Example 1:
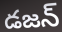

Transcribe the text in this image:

డజన్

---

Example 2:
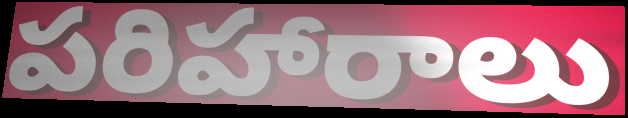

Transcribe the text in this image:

పరిహారాలు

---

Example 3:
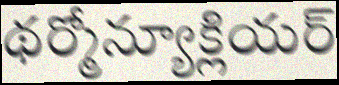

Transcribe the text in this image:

థర్మోన్యూక్లియర్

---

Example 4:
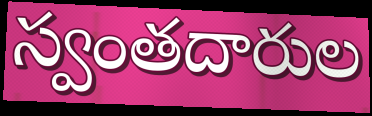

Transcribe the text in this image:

స్వంతదారుల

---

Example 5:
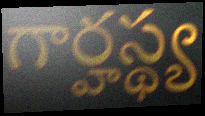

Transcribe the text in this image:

గార్హస్థ్య